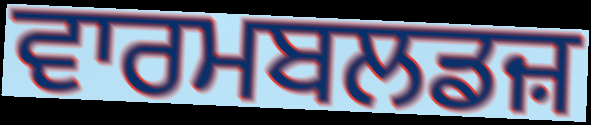
ਵਾਰਮਬਲਡਜ਼